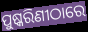
ପୁଷ୍କରିଣୀଠାରେ